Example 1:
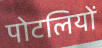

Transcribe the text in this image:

पोटलियों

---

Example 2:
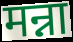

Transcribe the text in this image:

मन्ना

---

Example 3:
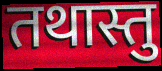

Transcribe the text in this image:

तथास्तु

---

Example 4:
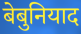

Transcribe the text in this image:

बेबुनियाद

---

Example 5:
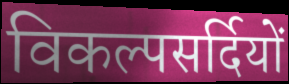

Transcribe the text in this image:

विकल्पसर्दियों